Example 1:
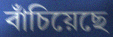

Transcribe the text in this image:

বাঁচিয়েছে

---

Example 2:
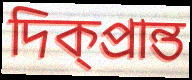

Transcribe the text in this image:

দিক্‌প্রান্ত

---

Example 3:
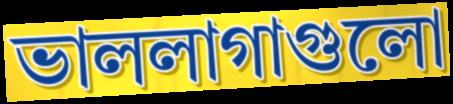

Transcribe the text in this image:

ভাললাগাগুলো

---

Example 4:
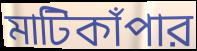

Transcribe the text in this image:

মাটিকাঁপার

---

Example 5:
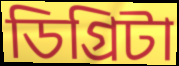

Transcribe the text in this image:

ডিগ্রিটা